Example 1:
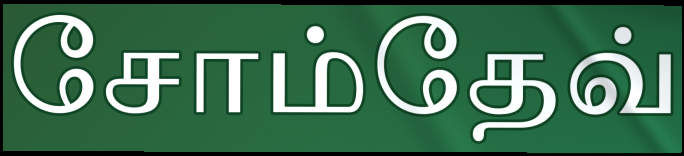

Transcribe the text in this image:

சோம்தேவ்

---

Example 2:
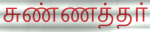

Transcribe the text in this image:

சுண்ணத்தர்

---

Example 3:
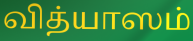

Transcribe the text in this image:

வித்யாஸம்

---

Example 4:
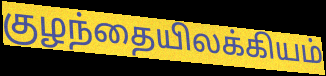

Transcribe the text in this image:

குழந்தையிலக்கியம்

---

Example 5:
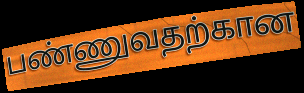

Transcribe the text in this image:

பண்ணுவதற்கான